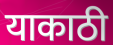
याकाठी